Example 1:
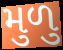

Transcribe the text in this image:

મુળુ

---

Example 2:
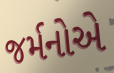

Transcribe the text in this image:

જર્મનોએ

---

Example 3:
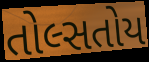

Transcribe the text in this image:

તોલ્સતોય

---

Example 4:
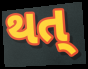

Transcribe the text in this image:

થત્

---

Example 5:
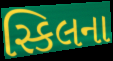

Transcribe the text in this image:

સ્કિલના